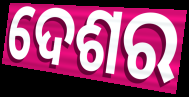
ଦେଶର